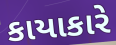
કાયાકારે